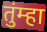
तुंम्हा